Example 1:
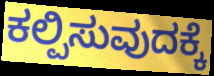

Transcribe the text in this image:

ಕಲ್ಪಿಸುವುದಕ್ಕೆ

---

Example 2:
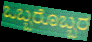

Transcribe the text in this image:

ಒಬ್ಬರೊಬ್ಬರ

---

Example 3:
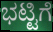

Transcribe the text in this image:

ಭಟ್ಟಿಗೆ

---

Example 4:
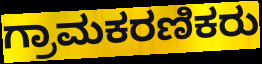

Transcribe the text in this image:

ಗ್ರಾಮಕರಣಿಕರು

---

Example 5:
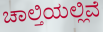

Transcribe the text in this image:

ಚಾಲ್ತಿಯಲ್ಲಿವೆ